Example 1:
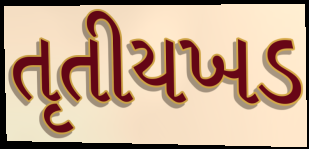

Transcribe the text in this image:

તૃતીયખડ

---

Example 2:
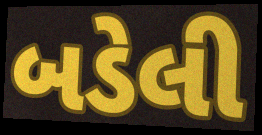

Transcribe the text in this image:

બડેલી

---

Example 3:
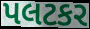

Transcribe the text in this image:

પલટકર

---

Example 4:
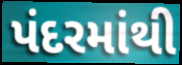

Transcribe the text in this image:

પંદરમાંથી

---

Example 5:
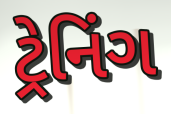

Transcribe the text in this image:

ટ્રેનિંગ